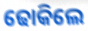
ଢୋକିଲେ